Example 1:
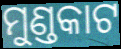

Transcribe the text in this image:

ମୁଣ୍ଡକାଟ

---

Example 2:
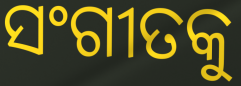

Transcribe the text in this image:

ସଂଗୀତକୁ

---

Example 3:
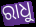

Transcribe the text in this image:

ରାଧୁ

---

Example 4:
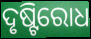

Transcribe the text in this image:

ଦୃଷ୍ଟିରୋଧ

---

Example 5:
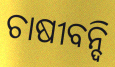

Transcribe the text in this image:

ଚାଷୀବନ୍ଦି